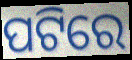
ପଟିରେ